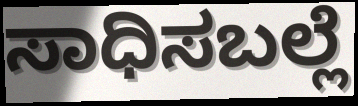
ಸಾಧಿಸಬಲ್ಲೆ